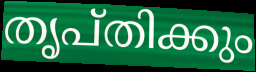
തൃപ്തിക്കും